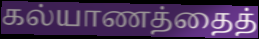
கல்யாணத்தைத்